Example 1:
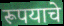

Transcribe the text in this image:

रूपयाचे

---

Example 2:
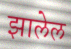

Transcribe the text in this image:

झालेल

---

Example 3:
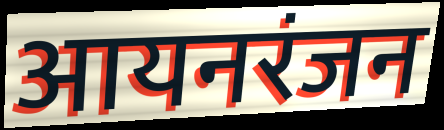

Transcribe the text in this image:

आयनरंजन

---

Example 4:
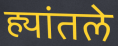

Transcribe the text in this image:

ह्यांतले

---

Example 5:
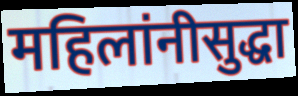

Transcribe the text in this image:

महिलांनीसुद्धा